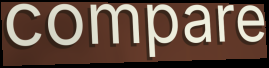
compare